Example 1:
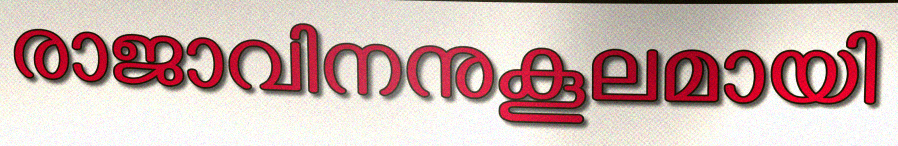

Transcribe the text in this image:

രാജാവിനനുകൂലമായി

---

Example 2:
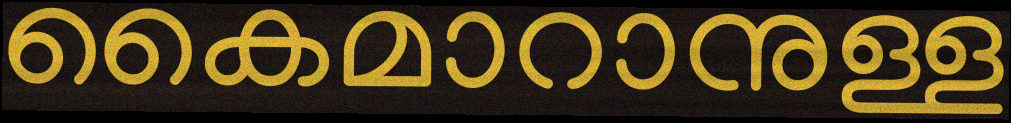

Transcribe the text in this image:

കൈമാറാനുള്ള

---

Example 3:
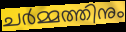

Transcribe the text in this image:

ചർമ്മത്തിനും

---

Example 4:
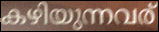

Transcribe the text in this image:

കഴിയുന്നവര്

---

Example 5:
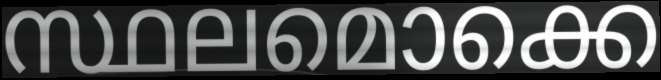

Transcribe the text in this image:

സ്ഥലമൊക്കെ